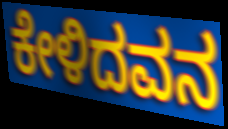
ಕೇಳಿದವನ